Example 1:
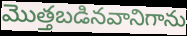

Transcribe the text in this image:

మొత్తబడినవానిగాను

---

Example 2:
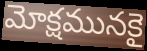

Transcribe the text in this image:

మోక్షమునకై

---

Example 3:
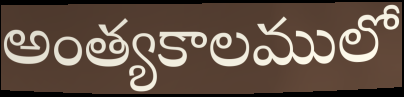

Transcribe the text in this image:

అంత్యకాలములో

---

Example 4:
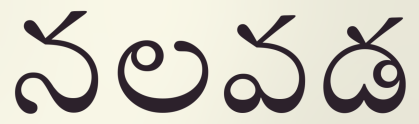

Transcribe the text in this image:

నలవడ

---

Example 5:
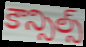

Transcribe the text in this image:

కౌన్సిల్స్